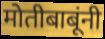
मोतीबाबूंनी